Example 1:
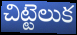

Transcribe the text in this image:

చిట్టెలుక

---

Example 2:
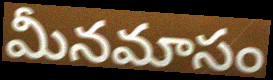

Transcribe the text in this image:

మీనమాసం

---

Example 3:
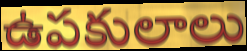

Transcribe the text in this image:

ఉపకులాలు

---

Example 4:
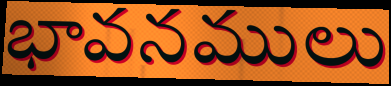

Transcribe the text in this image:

భావనములు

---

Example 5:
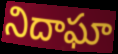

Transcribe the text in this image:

నిదాఘా